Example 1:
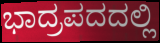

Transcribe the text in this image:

ಭಾದ್ರಪದದಲ್ಲಿ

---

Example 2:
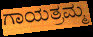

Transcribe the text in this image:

ಗಾಯತ್ರಮ್ಮ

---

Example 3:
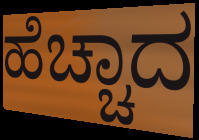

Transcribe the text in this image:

ಹೆಚ್ಚಾದ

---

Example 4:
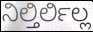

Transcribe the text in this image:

ನಿಲ್ತಿರ್ಲಿಲ್ಲ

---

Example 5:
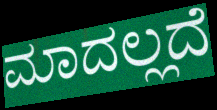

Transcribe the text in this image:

ಮಾದಲ್ಲದೆ